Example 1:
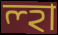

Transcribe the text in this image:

ল্হা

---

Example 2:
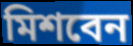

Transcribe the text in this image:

মিশবেন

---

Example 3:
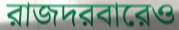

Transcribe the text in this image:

রাজদরবারেও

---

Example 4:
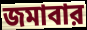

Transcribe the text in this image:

জমাবার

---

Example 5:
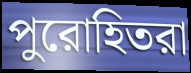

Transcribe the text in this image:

পুরোহিতরা